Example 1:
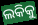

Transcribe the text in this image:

ଲକିକୁ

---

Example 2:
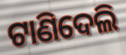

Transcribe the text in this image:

ଟାଣିଦେଲି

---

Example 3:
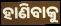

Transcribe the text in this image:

ହାଣିବାକୁ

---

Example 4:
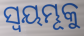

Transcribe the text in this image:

ସ୍ଵୟମ୍ଭୂକୁ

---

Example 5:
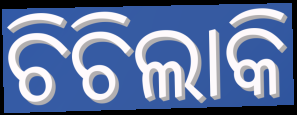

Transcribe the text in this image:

ଚିଚିଲାକି